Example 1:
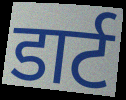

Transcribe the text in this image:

डार्ट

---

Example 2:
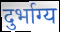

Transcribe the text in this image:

दुर्भाग्य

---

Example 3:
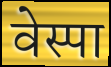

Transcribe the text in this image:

वेस्पा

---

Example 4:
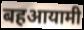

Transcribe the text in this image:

बहआयामी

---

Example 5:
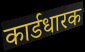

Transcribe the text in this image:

कार्डधारक